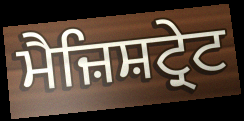
ਮੈਜ਼ਿਸ਼ਟ੍ਰੇਟ